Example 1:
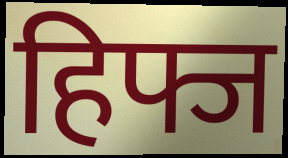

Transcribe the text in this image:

हिफ्ज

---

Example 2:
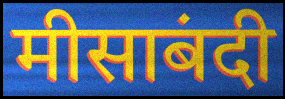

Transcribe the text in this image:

मीसाबंदी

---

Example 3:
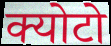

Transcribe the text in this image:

क्योटो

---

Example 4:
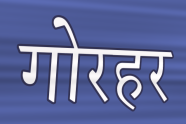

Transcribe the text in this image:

गोरहर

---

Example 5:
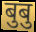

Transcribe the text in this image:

बुबु